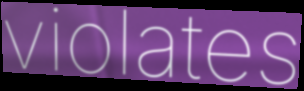
violates